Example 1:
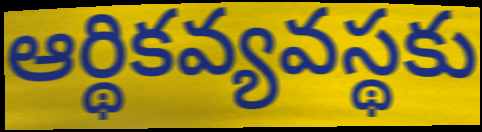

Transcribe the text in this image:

ఆర్థికవ్యవస్థకు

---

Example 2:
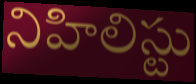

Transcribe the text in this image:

నిహిలిస్టు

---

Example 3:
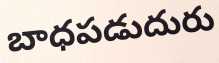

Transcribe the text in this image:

బాధపడుదురు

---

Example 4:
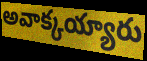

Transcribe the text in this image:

అవాక్కయ్యారు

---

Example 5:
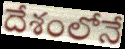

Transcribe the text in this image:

దేశంలోనే